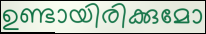
ഉണ്ടായിരിക്കുമോ